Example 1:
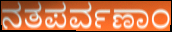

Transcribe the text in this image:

ನತಪರ್ವಣಾಂ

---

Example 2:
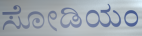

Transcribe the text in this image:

ಸೋಡಿಯಂ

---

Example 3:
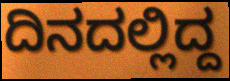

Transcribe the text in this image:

ದಿನದಲ್ಲಿದ್ದ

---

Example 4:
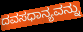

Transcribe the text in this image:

ದವಸಧಾನ್ಯವನ್ನು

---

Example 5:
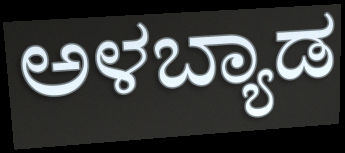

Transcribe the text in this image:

ಅಳಬ್ಯಾಡ